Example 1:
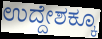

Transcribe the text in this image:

ಉದ್ದೇಶಕ್ಕೂ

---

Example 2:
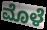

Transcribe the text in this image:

ಮೊಳೆ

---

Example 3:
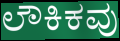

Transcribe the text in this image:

ಲೌಕಿಕವು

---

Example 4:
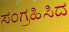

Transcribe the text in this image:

ಸಂಗ್ರಹಿಸಿದ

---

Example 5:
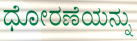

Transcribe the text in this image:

ಧೋರಣೆಯನ್ನು